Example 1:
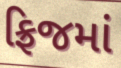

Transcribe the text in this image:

ફ્રિજમાં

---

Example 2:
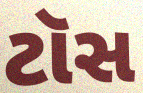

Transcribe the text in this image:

ટૉસ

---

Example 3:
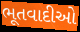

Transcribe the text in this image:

ભૂતવાદીઓ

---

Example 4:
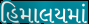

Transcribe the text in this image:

હિમાલયમાં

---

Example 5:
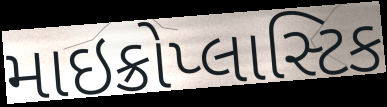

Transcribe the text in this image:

માઇક્રોપ્લાસ્ટિક